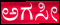
ಅಗಸೀ